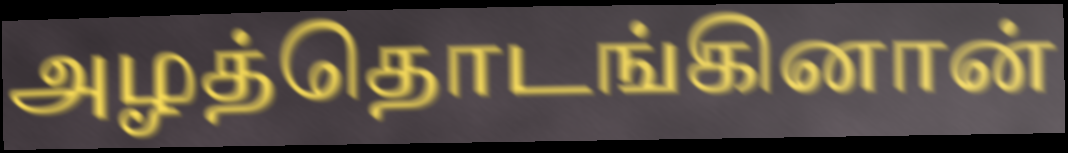
அழத்தொடங்கினான்